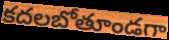
కదలబోతూండగా